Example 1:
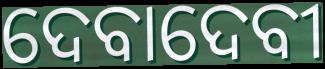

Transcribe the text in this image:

ଦେବାଦେବୀ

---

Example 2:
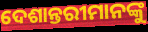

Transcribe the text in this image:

ଦେଶାନ୍ତରୀମାନଙ୍କୁ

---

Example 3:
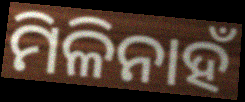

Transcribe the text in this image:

ମିଳିନାହଁ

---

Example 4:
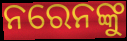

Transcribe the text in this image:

ନରେନଙ୍କୁ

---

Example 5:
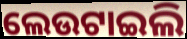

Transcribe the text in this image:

ଲେଉଟାଇଲି